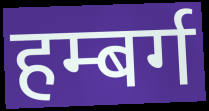
हम्बर्ग